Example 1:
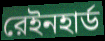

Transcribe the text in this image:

রেইনহার্ড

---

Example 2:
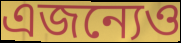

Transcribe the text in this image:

এজন্যেও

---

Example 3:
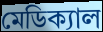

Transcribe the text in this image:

মেডিক্যাল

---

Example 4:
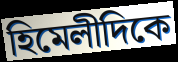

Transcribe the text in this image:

হিমেলীদিকে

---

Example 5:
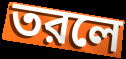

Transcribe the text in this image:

তরলে